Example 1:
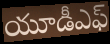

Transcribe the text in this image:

యూడీఎఫ్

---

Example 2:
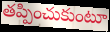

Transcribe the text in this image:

తప్పించుకుంటూ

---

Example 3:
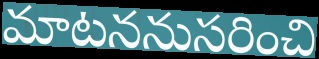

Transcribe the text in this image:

మాటననుసరించి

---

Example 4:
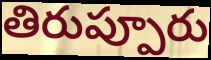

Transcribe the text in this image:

తిరుప్పూరు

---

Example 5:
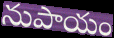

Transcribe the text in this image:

నుపాయం